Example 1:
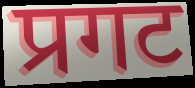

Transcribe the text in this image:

प्रगट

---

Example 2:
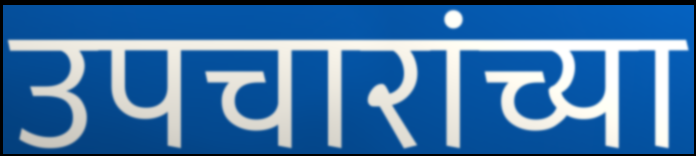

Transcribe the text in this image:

उपचारांच्या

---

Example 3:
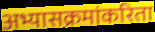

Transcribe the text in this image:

अभ्यासक्रमांकरिता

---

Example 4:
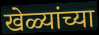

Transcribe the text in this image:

खेळ्यांच्या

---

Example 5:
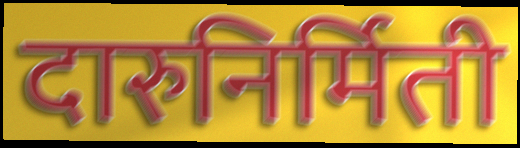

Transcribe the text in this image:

दारुनिर्मिती